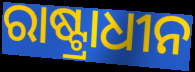
ରାଷ୍ଟ୍ରାଧୀନ